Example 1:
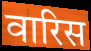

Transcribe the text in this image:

वारिस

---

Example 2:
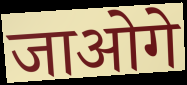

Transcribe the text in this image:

जाओगे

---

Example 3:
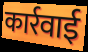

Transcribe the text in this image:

कार्रवाई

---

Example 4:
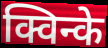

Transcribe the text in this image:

क्विन्के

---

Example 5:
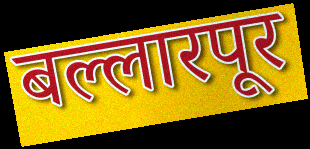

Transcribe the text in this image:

बल्लारपूर